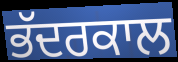
ਭੱਦਰਕਾਲ